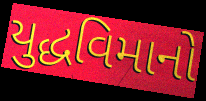
યુદ્ધવિમાનો